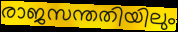
രാജസന്തതിയിലും